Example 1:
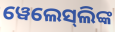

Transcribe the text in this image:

ୱେଲେସ୍‌ଲିଙ୍କ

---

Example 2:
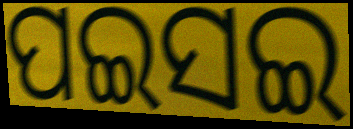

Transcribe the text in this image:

ପଇସଇ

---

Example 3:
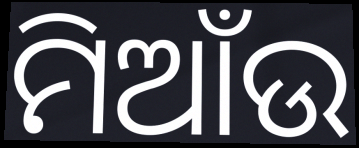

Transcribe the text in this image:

ମିଆଁଉ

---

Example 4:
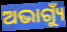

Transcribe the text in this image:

ଅଭାଗ୍ୟୁଁ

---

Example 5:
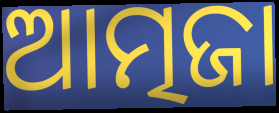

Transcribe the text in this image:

ଆତ୍ମଜା